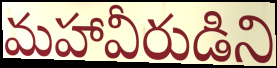
మహావీరుడిని